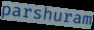
parshuram